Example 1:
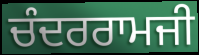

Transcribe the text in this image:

ਚੰਦਰਰਾਮਜੀ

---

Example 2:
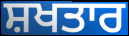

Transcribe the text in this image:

ਸ਼ਖਤਾਰ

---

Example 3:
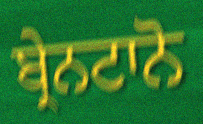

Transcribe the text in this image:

ਬ੍ਰੇਨਟਾਨੋ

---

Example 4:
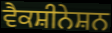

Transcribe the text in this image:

ਵੈਕਸ਼ੀਨੇਸ਼ਨ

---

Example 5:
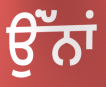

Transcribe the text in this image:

ਉਂੱਨਾਂ